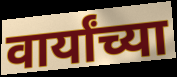
वार्यांच्या